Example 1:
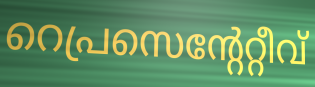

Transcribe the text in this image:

റെപ്രസെന്റേറ്റീവ്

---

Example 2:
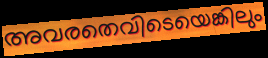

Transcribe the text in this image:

അവരതെവിടെയെങ്കിലും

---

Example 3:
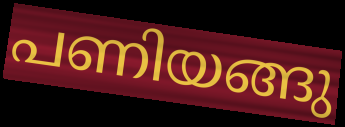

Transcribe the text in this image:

പണിയങ്ങു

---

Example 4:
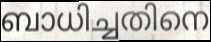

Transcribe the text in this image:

ബാധിച്ചതിനെ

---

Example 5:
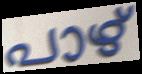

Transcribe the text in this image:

പാഴ്